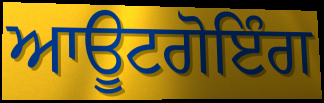
ਆਊਟਗੋਇੰਗ